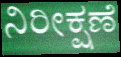
ನಿರೀಕ್ಷಣೆ